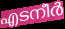
എടനീർ